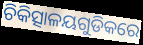
ଚିକିତ୍ସାଳୟଗୁଡିକରେ